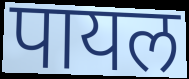
पायल